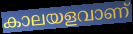
കാലയളവാണ്